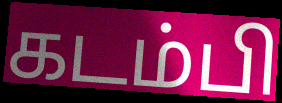
கடம்பி